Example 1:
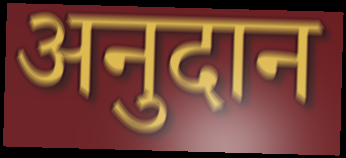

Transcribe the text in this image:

अनुदान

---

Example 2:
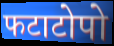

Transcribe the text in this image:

फटाटोपो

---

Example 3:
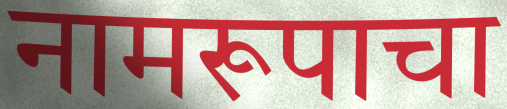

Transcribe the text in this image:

नामरूपाचा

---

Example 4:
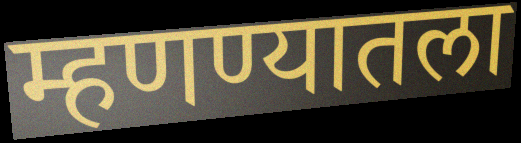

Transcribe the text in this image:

म्हणण्यातला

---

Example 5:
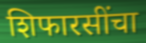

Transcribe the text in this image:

शिफारसींचा